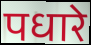
पधारे